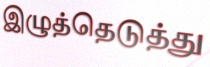
இழுத்தெடுத்து